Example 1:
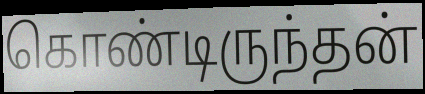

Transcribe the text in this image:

கொண்டிருந்தன்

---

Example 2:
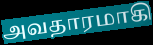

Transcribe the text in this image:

அவதாரமாகி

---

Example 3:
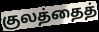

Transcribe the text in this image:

குலத்தைத்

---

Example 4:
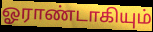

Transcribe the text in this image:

ஓராண்டாகியும்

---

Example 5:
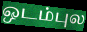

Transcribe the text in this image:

ஒடம்புல